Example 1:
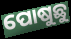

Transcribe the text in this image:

ପୋଷୁଛୁ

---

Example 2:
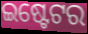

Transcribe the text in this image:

ଇଷ୍ଟେଟର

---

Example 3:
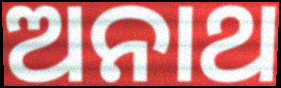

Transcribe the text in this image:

ଅନାଥ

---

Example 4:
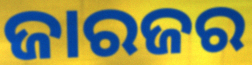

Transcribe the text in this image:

ଜାରଜର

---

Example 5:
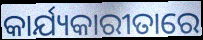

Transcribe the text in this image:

କାର୍ଯ୍ୟକାରୀତାରେ